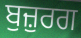
ਬੁਜ਼ੁਰਗ